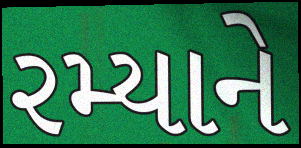
રમ્યાને